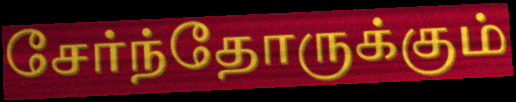
சேர்ந்தோருக்கும்